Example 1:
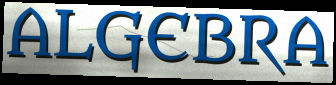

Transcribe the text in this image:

ALGEBRA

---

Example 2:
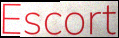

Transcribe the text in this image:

Escort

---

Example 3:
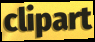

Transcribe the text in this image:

clipart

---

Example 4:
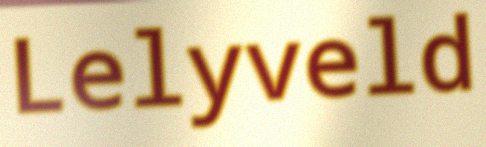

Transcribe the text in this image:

Lelyveld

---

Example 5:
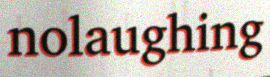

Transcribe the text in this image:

nolaughing